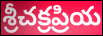
శ్రీచక్రప్రియ